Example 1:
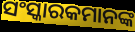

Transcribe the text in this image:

ସଂସ୍କାରକମାନଙ୍କ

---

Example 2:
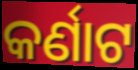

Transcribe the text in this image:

କର୍ଣାଟ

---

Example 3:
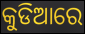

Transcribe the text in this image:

କୁଡିଆରେ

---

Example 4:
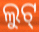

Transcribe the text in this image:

ଲୁଟ୍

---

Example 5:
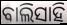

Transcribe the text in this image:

ବାଲିସାହି